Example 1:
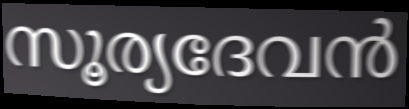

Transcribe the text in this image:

സൂര്യദേവൻ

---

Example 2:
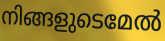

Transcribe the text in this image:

നിങ്ങളുടെമേൽ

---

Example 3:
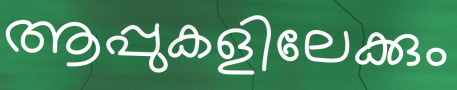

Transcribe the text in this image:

ആപ്പുകളിലേക്കും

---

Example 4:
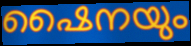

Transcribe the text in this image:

ഷൈനയും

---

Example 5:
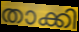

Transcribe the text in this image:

താക്കി